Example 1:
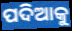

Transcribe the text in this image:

ପଦିଆକୁ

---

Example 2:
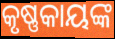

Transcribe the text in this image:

କୃଷ୍ଣକାୟଙ୍କ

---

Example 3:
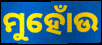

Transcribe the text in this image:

ମୁହୋଁଉ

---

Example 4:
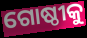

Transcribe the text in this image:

ଗୋଷ୍ଠୀକୁ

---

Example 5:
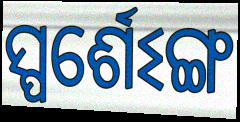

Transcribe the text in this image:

ସ୍ପର୍ଶେଽଙ୍ଗ